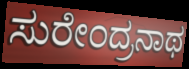
ಸುರೇಂದ್ರನಾಥ